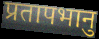
प्रतापभानु